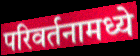
परिवर्तनामध्ये